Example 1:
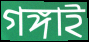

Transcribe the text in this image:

গঙ্গাই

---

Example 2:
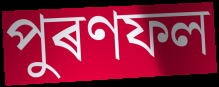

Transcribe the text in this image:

পুৰণফল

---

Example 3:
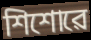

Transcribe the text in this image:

শিশোৱে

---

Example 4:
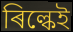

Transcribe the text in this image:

ৰিল্কেই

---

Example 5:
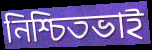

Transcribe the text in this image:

নিশ্চিতভাই